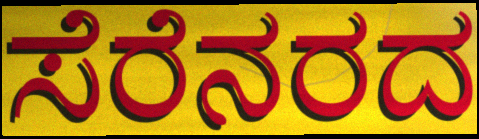
ಸೆರೆನರದ